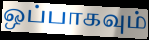
ஒப்பாகவும்